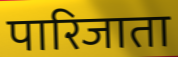
पारिजाता